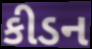
કીડન